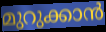
മുറുക്കാൻ